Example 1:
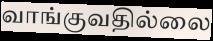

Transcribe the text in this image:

வாங்குவதில்லை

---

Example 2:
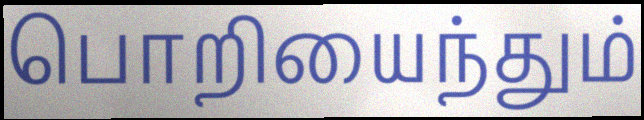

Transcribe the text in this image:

பொறியைந்தும்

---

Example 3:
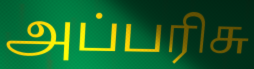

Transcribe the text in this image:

அப்பரிசு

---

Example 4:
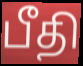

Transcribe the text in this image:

பீதி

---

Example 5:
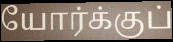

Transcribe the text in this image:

யோர்க்குப்